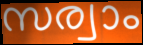
സര്വാം